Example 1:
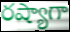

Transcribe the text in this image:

రష్యాగా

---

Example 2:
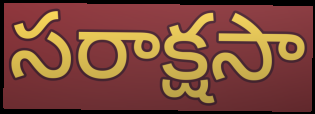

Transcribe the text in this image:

సరాక్షసా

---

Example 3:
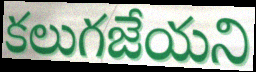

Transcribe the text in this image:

కలుగజేయని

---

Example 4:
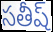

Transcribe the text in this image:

సతీష్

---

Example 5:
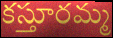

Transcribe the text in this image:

కస్తూరమ్మ